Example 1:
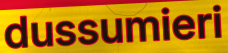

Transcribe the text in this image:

dussumieri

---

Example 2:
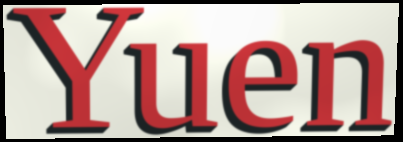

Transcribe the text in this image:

Yuen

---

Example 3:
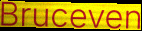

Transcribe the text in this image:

Bruceven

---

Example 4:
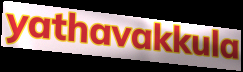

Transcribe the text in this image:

yathavakkula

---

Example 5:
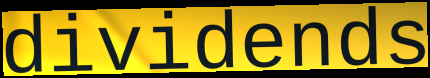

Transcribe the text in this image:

dividends